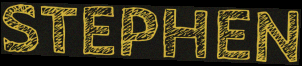
STEPHEN